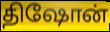
திஷோன்